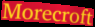
Morecroft